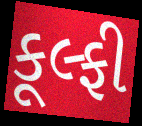
કૂલ્ફી